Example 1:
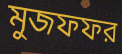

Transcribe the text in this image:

মুজফফর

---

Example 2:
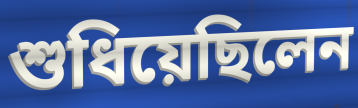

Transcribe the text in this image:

শুধিয়েছিলেন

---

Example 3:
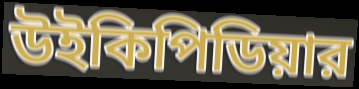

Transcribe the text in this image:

উইকিপিডিয়ার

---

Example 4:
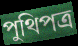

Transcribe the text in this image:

পুথিপত্র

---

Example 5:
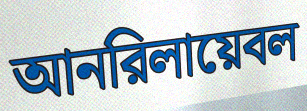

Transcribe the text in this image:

আনরিলায়েবল